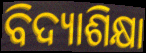
ବିଦ୍ୟାଶିକ୍ଷା